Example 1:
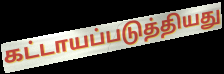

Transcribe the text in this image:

கட்டாயப்படுத்தியது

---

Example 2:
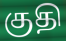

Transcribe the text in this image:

குதி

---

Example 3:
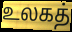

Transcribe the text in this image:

உலகத்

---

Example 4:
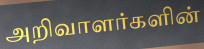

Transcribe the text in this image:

அறிவாளர்களின்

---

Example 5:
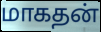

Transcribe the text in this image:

மாகதன்